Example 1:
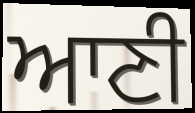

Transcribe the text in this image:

ਆਣੀ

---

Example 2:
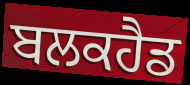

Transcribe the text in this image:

ਬਲਕਹੈਡ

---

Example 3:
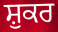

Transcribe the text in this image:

ਸ਼ੁਕਰ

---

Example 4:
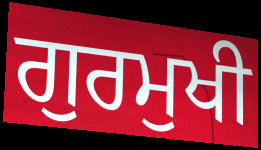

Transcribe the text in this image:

ਗੁਰਮੁਖੀ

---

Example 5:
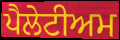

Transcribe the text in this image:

ਪੈਲੇਟੀਅਮ